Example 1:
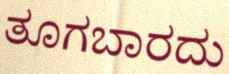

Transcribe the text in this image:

ತೂಗಬಾರದು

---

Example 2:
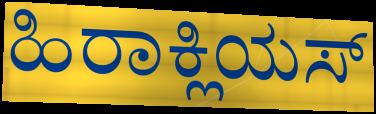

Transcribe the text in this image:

ಹಿರಾಕ್ಲಿಯಸ್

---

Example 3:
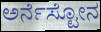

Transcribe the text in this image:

ಅರ್ನೆಸ್ಟೋನ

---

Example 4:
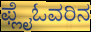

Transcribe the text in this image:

ಫ್ಲೈಓವರಿನ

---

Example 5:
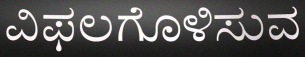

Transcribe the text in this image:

ವಿಫಲಗೊಳಿಸುವ